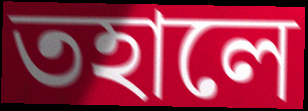
তহালে